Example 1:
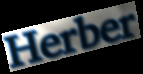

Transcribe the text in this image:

Herber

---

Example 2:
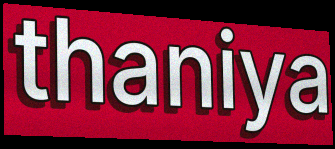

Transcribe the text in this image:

thaniya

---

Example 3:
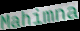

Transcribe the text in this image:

Mahimna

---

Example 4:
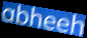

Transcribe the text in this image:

abheeh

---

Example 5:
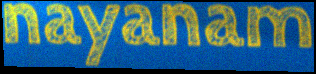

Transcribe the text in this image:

nayanam